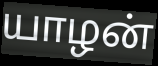
யாழன்